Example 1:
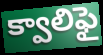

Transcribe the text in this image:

క్వాలిఫై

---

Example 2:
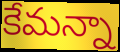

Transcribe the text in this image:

కేమన్నా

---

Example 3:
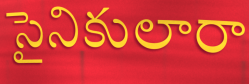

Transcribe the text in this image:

సైనికులారా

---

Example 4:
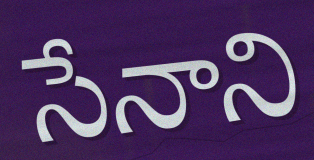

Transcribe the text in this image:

సేనాని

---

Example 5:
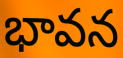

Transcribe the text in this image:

భావన